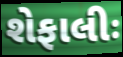
શેફાલીઃ